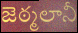
జెఠ్మలానీ